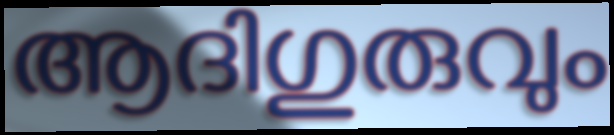
ആദിഗുരുവും